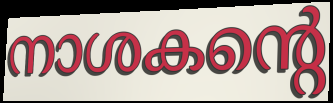
നാശകന്റെ